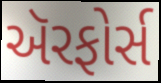
ઍરફોર્સ